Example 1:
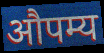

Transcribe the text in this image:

औपम्य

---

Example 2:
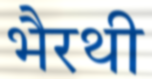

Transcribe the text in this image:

भैरथी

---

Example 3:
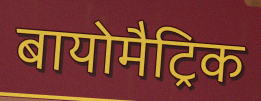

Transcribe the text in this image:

बायोमैट्रिक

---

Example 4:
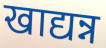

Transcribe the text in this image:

खाद्यन्न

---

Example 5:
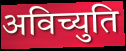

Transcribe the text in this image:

अविच्युति